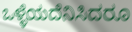
ಒಳ್ಳೆಯದೆನಿಸಿದರೂ